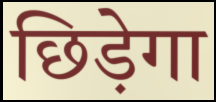
छिड़ेगा